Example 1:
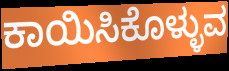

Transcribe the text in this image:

ಕಾಯಿಸಿಕೊಳ್ಳುವ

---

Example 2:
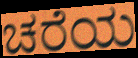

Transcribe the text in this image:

ಚರೆಯ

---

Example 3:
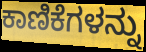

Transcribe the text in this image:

ಕಾಣಿಕೆಗಳನ್ನು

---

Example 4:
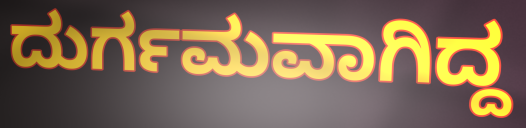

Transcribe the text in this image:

ದುರ್ಗಮವಾಗಿದ್ದ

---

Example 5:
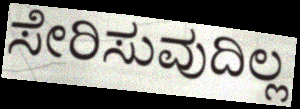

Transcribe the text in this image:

ಸೇರಿಸುವುದಿಲ್ಲ